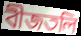
বীজতলি